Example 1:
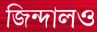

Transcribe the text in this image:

জিন্দালও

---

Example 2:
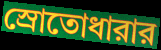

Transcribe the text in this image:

স্রোতোধারার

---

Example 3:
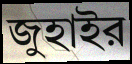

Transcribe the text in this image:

জুহাইর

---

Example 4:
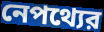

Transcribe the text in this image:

নেপথ্যের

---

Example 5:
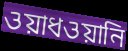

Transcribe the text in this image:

ওয়াধওয়ানি